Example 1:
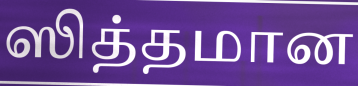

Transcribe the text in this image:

ஸித்தமான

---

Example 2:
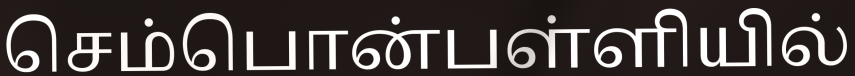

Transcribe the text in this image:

செம்பொன்பள்ளியில்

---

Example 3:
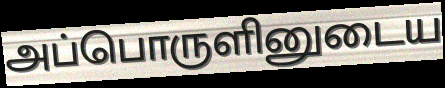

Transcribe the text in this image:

அப்பொருளினுடைய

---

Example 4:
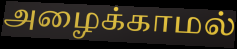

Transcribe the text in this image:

அழைக்காமல்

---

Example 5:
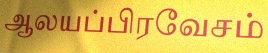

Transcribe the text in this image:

ஆலயப்பிரவேசம்